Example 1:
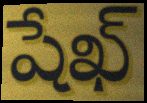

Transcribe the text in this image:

షేఖ్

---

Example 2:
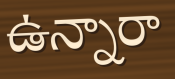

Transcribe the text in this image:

ఉన్నారా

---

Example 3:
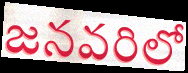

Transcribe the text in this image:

జనవరిలో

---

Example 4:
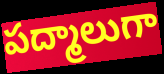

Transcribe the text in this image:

పద్మాలుగా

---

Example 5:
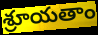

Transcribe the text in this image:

శ్రూయతాం